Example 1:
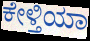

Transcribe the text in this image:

ಕೇಳ್ತಿಯಾ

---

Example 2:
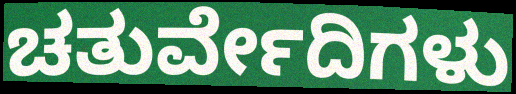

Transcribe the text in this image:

ಚತುರ್ವೇದಿಗಳು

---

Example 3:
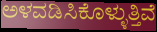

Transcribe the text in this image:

ಅಳವಡಿಸಿಕೊಳ್ಳುತ್ತಿವೆ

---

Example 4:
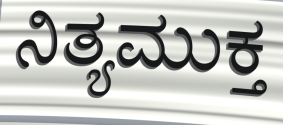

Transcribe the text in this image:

ನಿತ್ಯಮುಕ್ತ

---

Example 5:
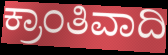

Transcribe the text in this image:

ಕ್ರಾಂತಿವಾದಿ